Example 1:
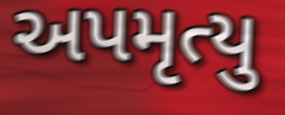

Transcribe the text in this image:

અપમૃત્યુ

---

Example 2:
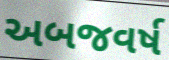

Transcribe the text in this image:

અબજવર્ષ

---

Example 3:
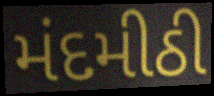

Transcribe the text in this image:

મંદમીઠી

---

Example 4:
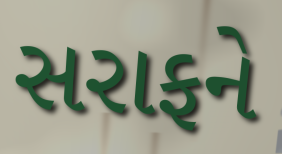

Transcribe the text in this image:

સરાફને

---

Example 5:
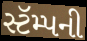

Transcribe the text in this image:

સ્ટૅમ્પની